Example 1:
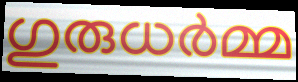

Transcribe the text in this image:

ഗുരുധർമ്മ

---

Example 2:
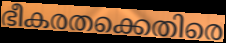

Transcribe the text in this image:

ഭീകരതക്കെതിരെ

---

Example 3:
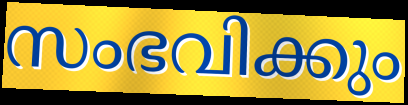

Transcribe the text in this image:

സംഭവിക്കും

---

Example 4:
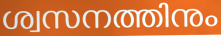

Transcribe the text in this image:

ശ്വസനത്തിനും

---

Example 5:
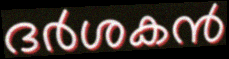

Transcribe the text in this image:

ദർശകൻ